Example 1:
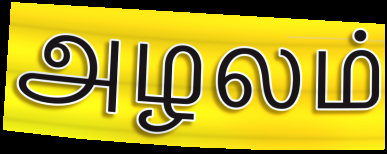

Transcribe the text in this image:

அழலம்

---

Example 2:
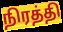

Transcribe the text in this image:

நிரத்தி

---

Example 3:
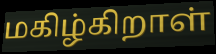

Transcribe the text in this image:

மகிழ்கிறாள்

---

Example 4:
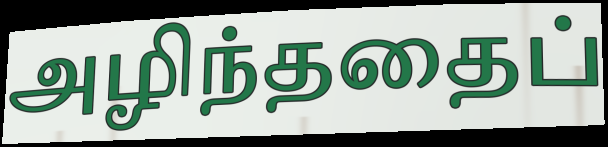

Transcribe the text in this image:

அழிந்ததைப்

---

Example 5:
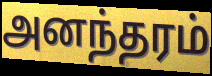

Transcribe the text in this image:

அனந்தரம்